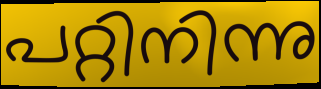
പറ്റിനിന്നു